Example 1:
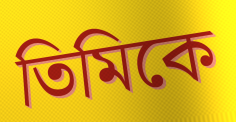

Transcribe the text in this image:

তিমিকে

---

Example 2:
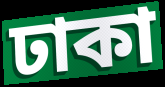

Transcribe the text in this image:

ঢাকা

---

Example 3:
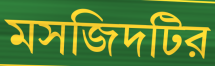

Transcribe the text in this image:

মসজিদটির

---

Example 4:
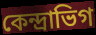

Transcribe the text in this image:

কেন্দ্রাভিগ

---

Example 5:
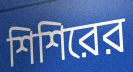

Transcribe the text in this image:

শিশিরের